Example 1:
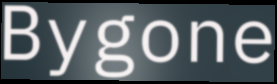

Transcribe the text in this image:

Bygone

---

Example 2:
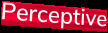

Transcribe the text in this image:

Perceptive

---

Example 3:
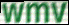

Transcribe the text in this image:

wmv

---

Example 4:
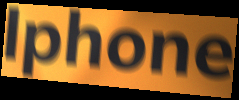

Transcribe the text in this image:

Iphone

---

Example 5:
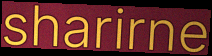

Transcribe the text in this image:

sharirne